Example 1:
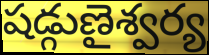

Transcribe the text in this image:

షడ్గుణైశ్వర్య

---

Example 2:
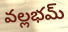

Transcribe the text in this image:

వల్లభమ్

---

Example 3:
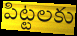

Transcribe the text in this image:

పిట్టలకు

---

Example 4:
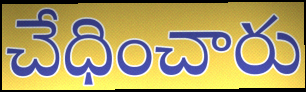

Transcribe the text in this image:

చేధించారు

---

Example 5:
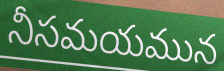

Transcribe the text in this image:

నీసమయమున